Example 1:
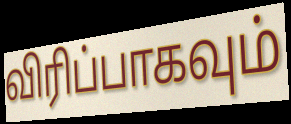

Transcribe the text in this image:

விரிப்பாகவும்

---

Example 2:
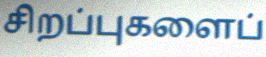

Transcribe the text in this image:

சிறப்புகளைப்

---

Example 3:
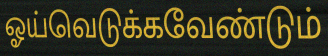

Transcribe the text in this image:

ஓய்வெடுக்கவேண்டும்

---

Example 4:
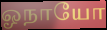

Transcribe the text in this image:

ஓநாயோ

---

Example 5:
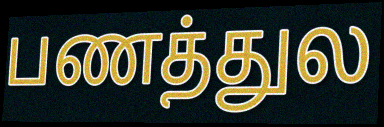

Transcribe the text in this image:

பணத்துல